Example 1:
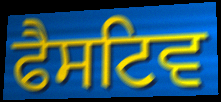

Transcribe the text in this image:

ਫੈਸਟਿਵ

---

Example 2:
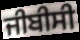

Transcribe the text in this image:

ਜੀਬੀਸੀ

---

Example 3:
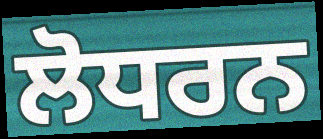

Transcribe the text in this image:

ਲੋਧਰਨ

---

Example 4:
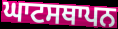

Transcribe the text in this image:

ਘਾਟਸਥਾਪਨ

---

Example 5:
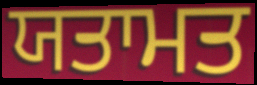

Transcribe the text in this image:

ਯਤਾਮਤ